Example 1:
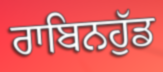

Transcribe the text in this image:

ਰਾਬਿਨਹੁੱਡ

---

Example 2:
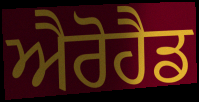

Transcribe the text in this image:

ਐਰੋਹੈਡ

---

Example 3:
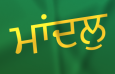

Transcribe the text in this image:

ਮਾਂਦਲੁ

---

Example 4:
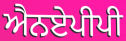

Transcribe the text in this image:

ਐਨਏਪੀਪੀ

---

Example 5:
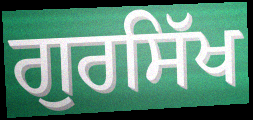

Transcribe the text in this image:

ਗੁਰਸਿੱਖ